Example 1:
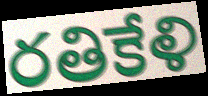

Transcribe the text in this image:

రతికేళి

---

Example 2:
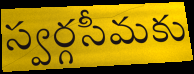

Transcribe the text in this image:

స్వర్గసీమకు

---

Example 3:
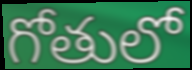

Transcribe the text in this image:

గోతులో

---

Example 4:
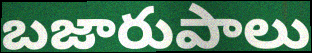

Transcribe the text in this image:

బజారుపాలు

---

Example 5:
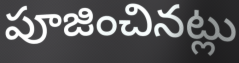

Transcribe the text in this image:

పూజించినట్లు